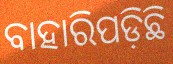
ବାହାରିପଡ଼ିଛି